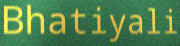
Bhatiyali